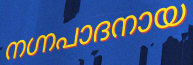
നഗ്നപാദനായ